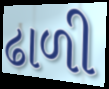
ઢાળી